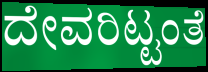
ದೇವರಿಟ್ಟಂತೆ